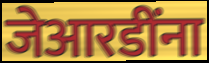
जेआरडींना